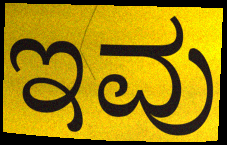
ಇವು